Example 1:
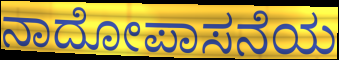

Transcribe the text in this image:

ನಾದೋಪಾಸನೆಯ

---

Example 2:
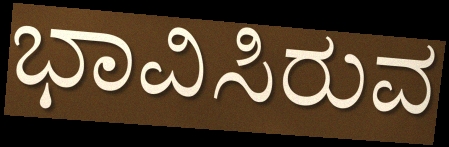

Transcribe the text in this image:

ಭಾವಿಸಿರುವ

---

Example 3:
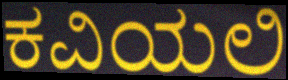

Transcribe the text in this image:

ಕವಿಯಲಿ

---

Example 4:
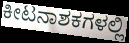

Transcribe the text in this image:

ಕೀಟನಾಶಕಗಳಲ್ಲಿ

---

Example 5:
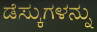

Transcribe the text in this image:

ಡೆಸ್ಕುಗಳನ್ನು